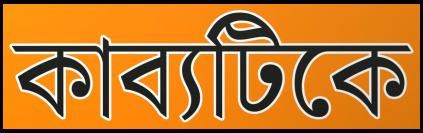
কাব্যটিকে